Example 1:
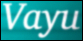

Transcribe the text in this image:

Vayu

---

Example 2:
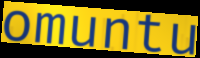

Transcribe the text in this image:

omuntu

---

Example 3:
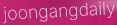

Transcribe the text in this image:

joongangdaily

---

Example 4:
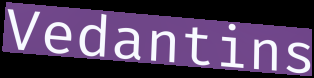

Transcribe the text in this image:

Vedantins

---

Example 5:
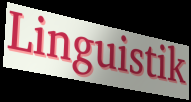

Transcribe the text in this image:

Linguistik